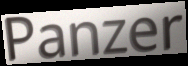
Panzer